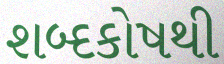
શબ્દકોષથી